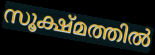
സൂക്ഷ്മത്തിൽ